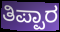
ತಿಪ್ಪಾರ